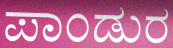
ಪಾಂಡುರ